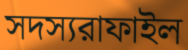
সদস্যরাফাইল